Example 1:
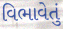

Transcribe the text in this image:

વિભાવેતું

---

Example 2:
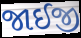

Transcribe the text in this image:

જાઈજી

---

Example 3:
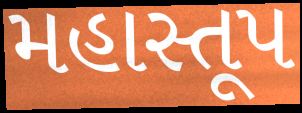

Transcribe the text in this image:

મહાસ્તૂપ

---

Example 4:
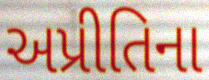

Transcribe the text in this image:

અપ્રીતિના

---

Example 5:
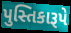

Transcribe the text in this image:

પુસ્તિકારૂપે